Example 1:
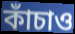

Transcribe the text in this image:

কাঁচাও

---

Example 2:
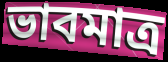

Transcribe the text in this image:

ভাবমাত্র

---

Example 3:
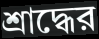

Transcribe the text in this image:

শ্রাদ্ধের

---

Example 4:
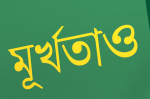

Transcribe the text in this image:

মূর্খতাও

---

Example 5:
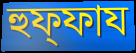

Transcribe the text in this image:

হুফ্ফায